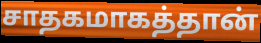
சாதகமாகத்தான்